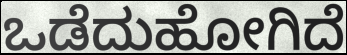
ಒಡೆದುಹೋಗಿದೆ